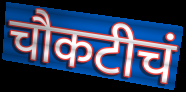
चौकटीचं